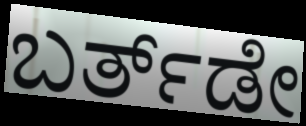
ಬರ್ತ್‌ಡೇ